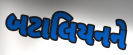
બટાલિયનને